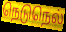
நெடுநெல்